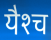
यैश्च